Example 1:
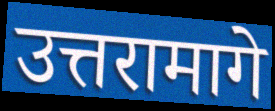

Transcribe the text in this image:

उत्तरामागे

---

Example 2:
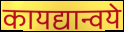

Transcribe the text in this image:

कायद्यान्वये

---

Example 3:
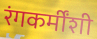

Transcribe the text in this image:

रंगकर्मींशी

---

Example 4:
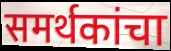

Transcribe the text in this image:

समर्थकांचा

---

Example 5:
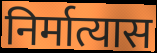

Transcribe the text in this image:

निर्मात्यास